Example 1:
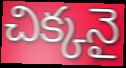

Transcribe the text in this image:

చిక్కనై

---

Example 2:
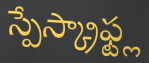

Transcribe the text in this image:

స్పేస్క్రాఫ్ట్ల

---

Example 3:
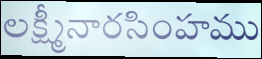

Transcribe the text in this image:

లక్ష్మీనారసింహము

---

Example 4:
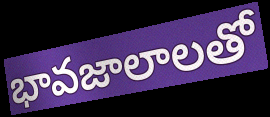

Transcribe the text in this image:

భావజాలాలతో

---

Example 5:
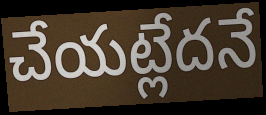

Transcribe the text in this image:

చేయట్లేదనే